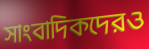
সাংবাদিকদেরও